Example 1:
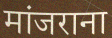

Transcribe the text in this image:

मांजराना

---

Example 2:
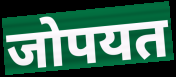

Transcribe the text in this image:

जोपयत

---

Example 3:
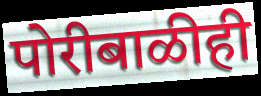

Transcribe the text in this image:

पोरीबाळीही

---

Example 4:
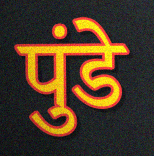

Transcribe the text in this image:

पुंडे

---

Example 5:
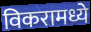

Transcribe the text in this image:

विकरामध्ये